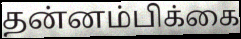
தன்னம்பிக்கை